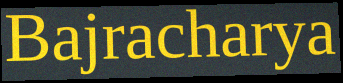
Bajracharya